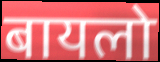
बायलो